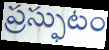
ప్రస్ఫుటం